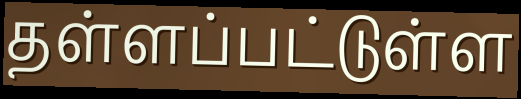
தள்ளப்பட்டுள்ள